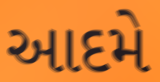
આદમે